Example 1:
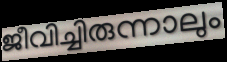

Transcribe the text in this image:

ജീവിച്ചിരുന്നാലും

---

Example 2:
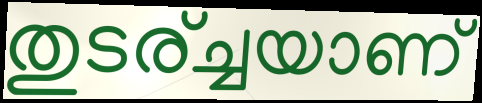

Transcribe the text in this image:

തുടര്ച്ചയാണ്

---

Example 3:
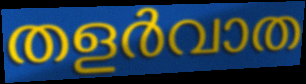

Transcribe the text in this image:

തളർവാത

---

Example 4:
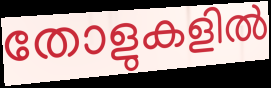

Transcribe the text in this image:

തോളുകളിൽ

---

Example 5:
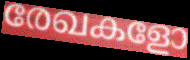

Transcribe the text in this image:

രേഖകളോ